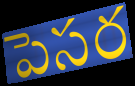
పెసర